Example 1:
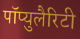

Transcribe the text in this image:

पॉप्युलैरिटी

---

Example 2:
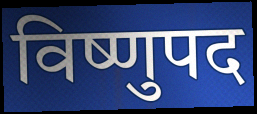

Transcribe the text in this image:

विष्‍णुपद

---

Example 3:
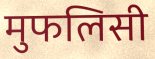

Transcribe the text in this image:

मुफलिसी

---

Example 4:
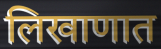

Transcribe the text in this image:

लिखाणात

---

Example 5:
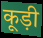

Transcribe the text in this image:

कूड़ी